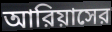
আরিয়াসের